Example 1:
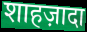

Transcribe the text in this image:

शाहज़ादा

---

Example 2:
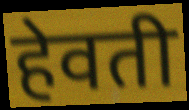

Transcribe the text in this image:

हेवती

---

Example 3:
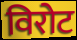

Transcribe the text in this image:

विरोट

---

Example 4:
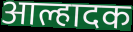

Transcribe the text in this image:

आल्हादक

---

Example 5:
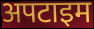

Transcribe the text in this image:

अपटाइम